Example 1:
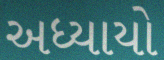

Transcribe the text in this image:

અધ્યાયો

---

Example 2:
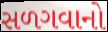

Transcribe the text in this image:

સળગવાનો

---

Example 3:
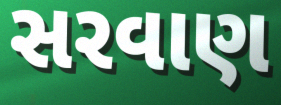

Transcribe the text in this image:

સરવાણ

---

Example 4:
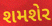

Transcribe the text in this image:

શમશેર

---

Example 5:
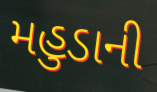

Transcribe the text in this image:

મહુડાની